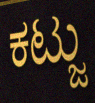
ಕಟ್ಜು